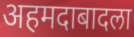
अहमदाबादला